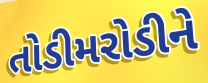
તોડીમરોડીને